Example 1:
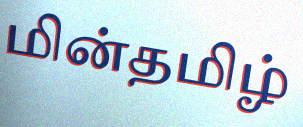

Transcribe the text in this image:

மின்தமிழ்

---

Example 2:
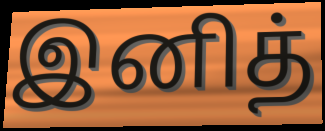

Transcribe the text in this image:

இனித்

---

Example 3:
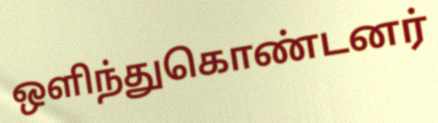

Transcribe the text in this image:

ஒளிந்துகொண்டனர்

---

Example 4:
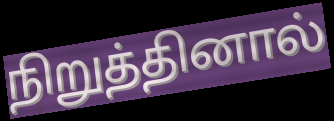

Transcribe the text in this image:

நிறுத்தினால்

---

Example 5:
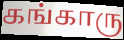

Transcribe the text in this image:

கங்காரு